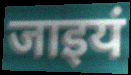
जाइयं